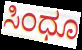
ಸಿಂಧೂ